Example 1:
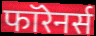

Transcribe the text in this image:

फॉरेनर्स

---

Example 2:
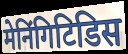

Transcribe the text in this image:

मेनिंगिटिडिस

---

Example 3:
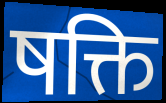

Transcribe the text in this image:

षक्ति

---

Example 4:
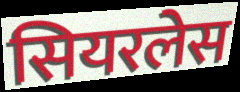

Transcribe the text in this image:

सियरलेस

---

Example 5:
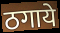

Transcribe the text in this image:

ठगाये